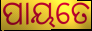
ପାୟତେ